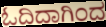
ಓದಿದಾಗಿಂದ